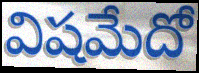
విషమేదో